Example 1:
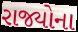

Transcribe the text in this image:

રાજ્યોના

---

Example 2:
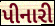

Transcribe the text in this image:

પીનારી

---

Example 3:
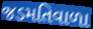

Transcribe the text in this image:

જડમતિવાળા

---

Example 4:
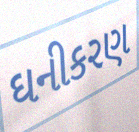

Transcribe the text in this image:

ઘનીકરણ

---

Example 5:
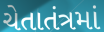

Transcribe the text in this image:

ચેતાતંત્રમાં